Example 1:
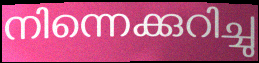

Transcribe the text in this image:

നിന്നെക്കുറിച്ചു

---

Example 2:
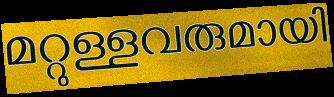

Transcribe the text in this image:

മറ്റുള്ളവരുമായി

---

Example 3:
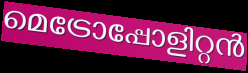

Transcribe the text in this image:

മെട്രോപ്പോളിറ്റൻ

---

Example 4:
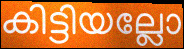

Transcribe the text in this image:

കിട്ടിയല്ലോ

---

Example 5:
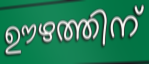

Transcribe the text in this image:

ഊഴത്തിന്